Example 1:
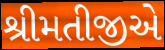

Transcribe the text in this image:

શ્રીમતીજીએ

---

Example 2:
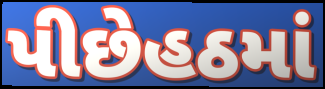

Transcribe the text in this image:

પીછેહઠમાં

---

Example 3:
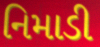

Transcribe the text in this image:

નિમાડી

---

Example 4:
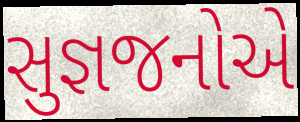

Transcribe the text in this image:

સુજ્ઞજનોએ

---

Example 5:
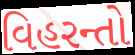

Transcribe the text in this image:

વિહરન્તો